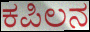
ಕಪಿಲನ